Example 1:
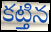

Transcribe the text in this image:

కట్తిన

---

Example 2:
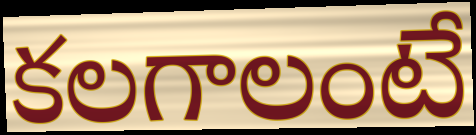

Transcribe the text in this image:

కలగాలంటే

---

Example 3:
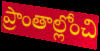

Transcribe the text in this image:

ప్రాంతాల్లోంచి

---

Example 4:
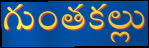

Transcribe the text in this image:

గుంతకల్లు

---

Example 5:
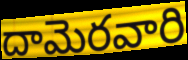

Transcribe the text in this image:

దామెరవారి